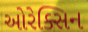
ઓરેક્સિન